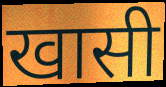
खासी